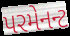
પરમેનન્ટ